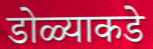
डोळ्याकडे